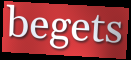
begets